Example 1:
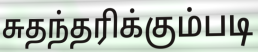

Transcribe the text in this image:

சுதந்தரிக்கும்படி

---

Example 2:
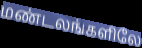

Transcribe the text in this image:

மண்டலங்களிலே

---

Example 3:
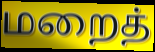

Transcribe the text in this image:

மறைத்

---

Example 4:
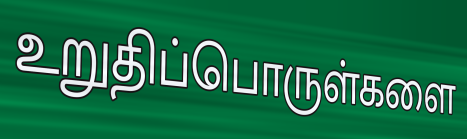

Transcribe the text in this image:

உறுதிப்பொருள்களை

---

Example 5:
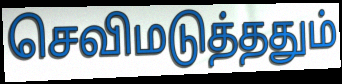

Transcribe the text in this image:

செவிமடுத்ததும்